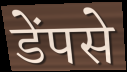
डेंपसे